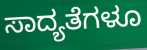
ಸಾದ್ಯತೆಗಳೂ